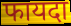
फायदा